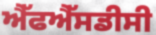
ਐੱਫਐੱਸਡੀਸੀ